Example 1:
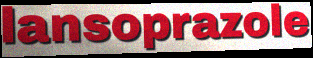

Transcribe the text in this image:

lansoprazole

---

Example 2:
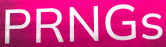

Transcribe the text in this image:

PRNGs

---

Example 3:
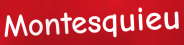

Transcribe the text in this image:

Montesquieu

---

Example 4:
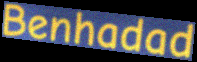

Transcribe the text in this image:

Benhadad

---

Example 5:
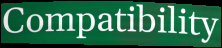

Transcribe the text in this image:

Compatibility